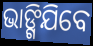
ଭାଙ୍ଗିଯିବେ